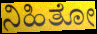
ನಿಹಿತೋ